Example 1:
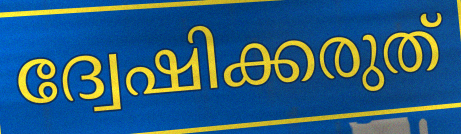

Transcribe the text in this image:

ദ്വേഷിക്കരുത്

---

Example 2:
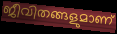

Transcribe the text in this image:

ജീവിതങ്ങളുമാണ്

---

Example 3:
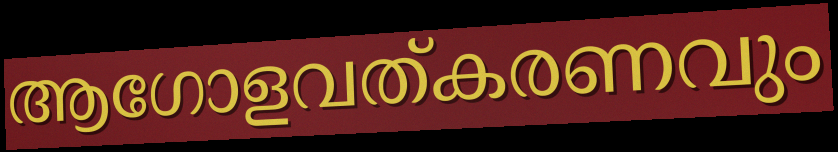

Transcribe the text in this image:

ആഗോളവത്കരണവും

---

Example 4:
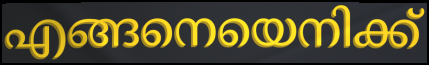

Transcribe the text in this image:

എങ്ങനെയെനിക്ക്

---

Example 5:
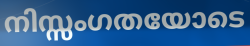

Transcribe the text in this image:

നിസ്സംഗതയോടെ